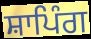
ਸ਼ਾਪਿੰਗ